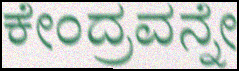
ಕೇಂದ್ರವನ್ನೇ